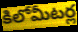
కిలోమీటర్ల